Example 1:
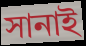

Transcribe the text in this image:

সানাই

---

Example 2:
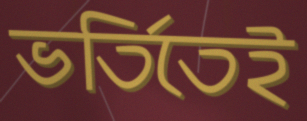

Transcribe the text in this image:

ভর্তিতেই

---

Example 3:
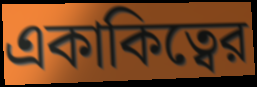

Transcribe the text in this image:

একাকিত্বের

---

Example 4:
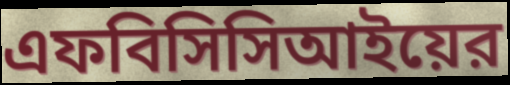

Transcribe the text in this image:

এফবিসিসিআইয়ের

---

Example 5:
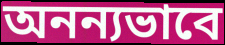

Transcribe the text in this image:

অনন্যভাবে